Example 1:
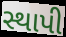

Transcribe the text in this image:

સ્થાપી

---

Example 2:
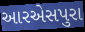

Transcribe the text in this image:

આરએસપુરા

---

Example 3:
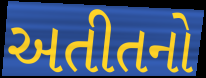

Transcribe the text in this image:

અતીતનો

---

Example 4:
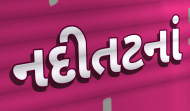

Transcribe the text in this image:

નદીતટનાં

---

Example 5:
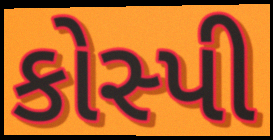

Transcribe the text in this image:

કોસ્પી